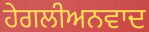
ਹੇਗਲੀਅਨਵਾਦ